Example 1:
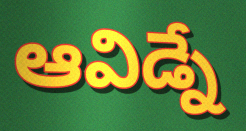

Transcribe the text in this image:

ఆవిడ్నే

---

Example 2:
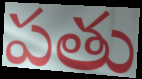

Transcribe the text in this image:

పతు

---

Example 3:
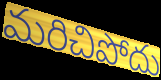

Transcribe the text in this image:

మరిచిపోదు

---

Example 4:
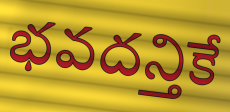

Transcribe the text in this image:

భవదన్తికే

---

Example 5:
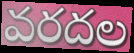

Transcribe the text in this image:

వరదల